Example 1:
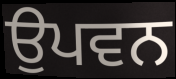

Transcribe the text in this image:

ਉਪਵਨ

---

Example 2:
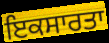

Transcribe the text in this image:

ਇਕਸਾਰਤਾ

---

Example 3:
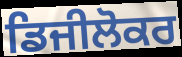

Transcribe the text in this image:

ਡਿਜੀਲੋਕਰ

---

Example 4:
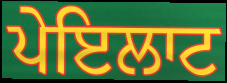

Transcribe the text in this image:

ਪੇਇਲਾਟ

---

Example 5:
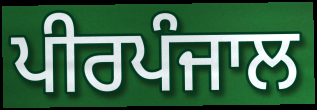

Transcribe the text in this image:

ਪੀਰਪੰਜਾਲ